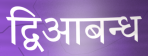
द्विआबन्ध